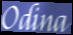
Odina